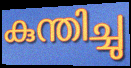
കുന്തിച്ചു